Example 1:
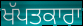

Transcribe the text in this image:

ਖੱਪਤਕਾਰਾ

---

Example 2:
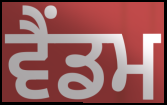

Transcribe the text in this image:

ਵੈਂਡਮ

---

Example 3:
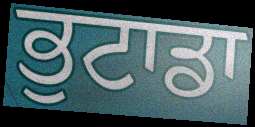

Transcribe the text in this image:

ਭੁਟਾਡਾ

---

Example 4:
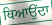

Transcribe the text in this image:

ਥਿਆਉਂਦਾ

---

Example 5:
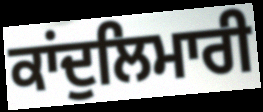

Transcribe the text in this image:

ਕਾਂਦੁਲਿਮਾਰੀ